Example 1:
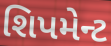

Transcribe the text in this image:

શિપમેન્ટ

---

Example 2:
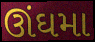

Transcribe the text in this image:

ઊંઘમા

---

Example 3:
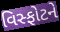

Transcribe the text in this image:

વિસ્ફોટને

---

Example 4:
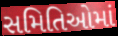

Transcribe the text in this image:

સમિતિઓમાં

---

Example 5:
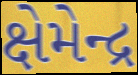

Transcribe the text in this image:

ક્ષેમેન્દ્ર